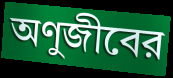
অণুজীবের